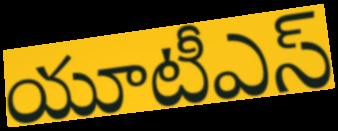
యూటీఎస్